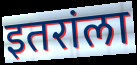
इतरांला